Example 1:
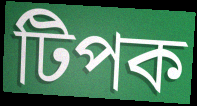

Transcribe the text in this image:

টিপক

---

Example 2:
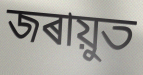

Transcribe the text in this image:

জৰায়ুত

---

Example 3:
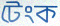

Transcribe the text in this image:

টেংক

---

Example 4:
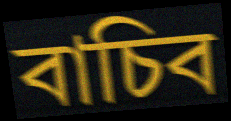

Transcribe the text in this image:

বাচিব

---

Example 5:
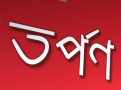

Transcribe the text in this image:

তৰ্পণ